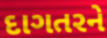
દાગતરને